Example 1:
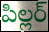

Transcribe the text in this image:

పిల్లర్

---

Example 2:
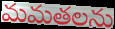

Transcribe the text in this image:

మమతలను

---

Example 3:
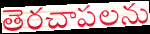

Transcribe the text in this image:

తెరచాపలను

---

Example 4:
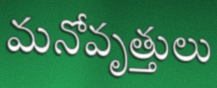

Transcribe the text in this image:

మనోవృత్తులు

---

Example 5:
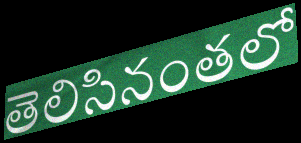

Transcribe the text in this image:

తెలిసినంతలో